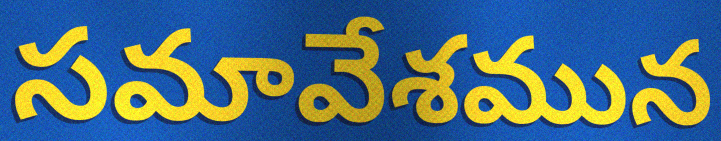
సమావేశమున